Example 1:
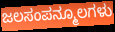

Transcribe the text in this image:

ಜಲಸಂಪನ್ಮೂಲಗಳು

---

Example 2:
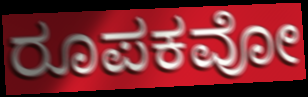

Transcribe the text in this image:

ರೂಪಕವೋ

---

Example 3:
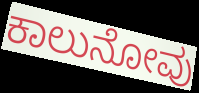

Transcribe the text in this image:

ಕಾಲುನೋವು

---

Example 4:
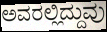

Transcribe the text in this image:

ಅವರಲ್ಲಿದ್ದುವು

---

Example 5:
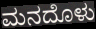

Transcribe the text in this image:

ಮನದೊಳು